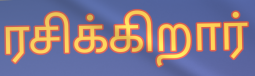
ரசிக்கிறார்